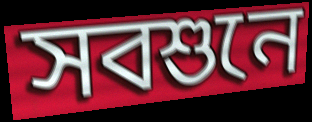
সবশুনে